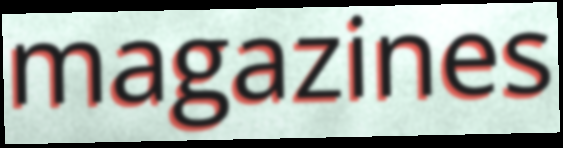
magazines